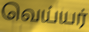
வெய்யர்